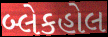
બ્લેકહોલ